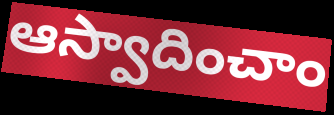
ఆస్వాదించాం